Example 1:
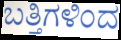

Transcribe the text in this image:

ಬತ್ತಿಗಳಿಂದ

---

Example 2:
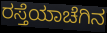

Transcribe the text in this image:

ರಸ್ತೆಯಾಚೆಗಿನ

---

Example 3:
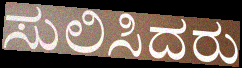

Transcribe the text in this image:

ಸುಲಿಸಿದರು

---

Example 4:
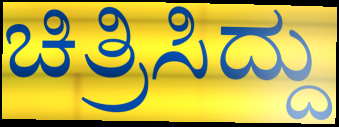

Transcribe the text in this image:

ಚಿತ್ರಿಸಿದ್ದು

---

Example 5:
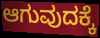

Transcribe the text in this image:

ಆಗುವುದಕ್ಕೆ